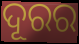
ଦୂରର